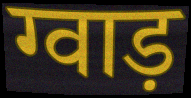
ग्वाड़